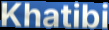
Khatibi